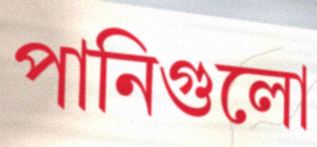
পানিগুলো